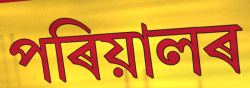
পৰিয়ালৰ